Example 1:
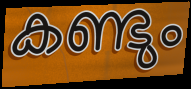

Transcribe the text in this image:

കണ്ടും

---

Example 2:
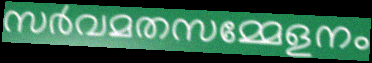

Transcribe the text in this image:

സർവമതസമ്മേളനം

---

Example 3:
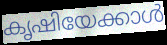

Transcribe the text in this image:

കൃഷിയേക്കാൾ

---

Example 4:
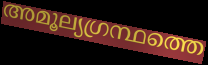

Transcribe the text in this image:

അമൂല്യഗ്രന്ഥത്തെ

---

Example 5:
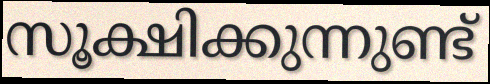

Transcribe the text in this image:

സൂക്ഷിക്കുന്നുണ്ട്